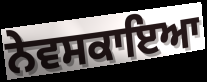
ਨੇਵਸਕਾਇਆ